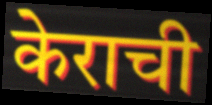
केराची